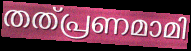
തത്പ്രണമാമി